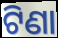
ଟିଣା